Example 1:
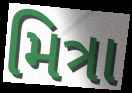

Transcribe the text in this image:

મિત્રા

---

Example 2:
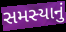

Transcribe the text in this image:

સમસ્યાનું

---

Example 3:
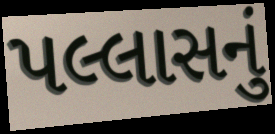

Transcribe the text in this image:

પલ્લાસનું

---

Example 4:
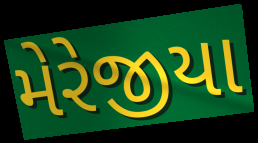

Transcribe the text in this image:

મેરેજીયા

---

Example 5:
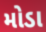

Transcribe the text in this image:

મોડા